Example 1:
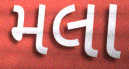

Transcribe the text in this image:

મલા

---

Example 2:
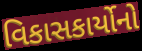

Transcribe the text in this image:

વિકાસકાર્યોનો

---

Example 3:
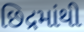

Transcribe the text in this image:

છિદ્રમાંથી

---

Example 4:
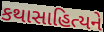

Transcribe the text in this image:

કથાસાહિત્યને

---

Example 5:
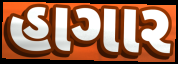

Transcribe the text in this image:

હાગાર